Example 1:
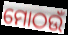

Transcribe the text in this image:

ମୋଠଉଁ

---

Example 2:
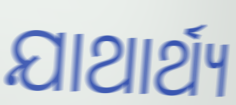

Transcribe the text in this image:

ଯାଥାର୍ଥ୍ୟ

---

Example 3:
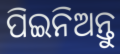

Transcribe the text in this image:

ପିଇନିଅନ୍ତୁ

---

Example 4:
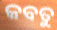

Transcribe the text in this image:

କବତୁ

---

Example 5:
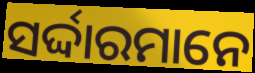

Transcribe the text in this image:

ସର୍ଦ୍ଦାରମାନେ